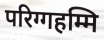
परिग्गहम्मि